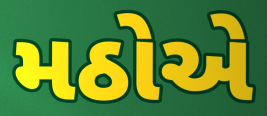
મઠોએ